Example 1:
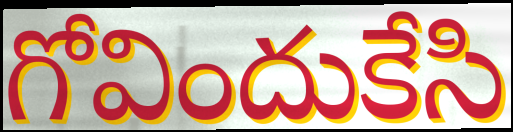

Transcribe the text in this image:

గోవిందుకేసి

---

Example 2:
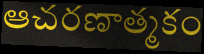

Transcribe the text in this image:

ఆచరణాత్మకం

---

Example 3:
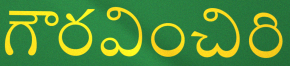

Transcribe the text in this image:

గౌరవించిరి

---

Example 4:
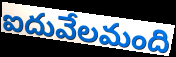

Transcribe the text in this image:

ఐదువేలమంది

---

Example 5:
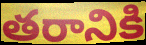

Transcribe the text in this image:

తరానికి